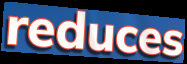
reduces